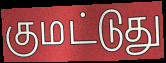
குமட்டுது